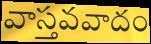
వాస్తవవాదం